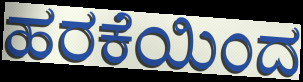
ಹರಕೆಯಿಂದ